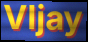
VIjay